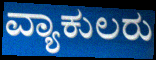
ವ್ಯಾಕುಲರು